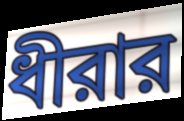
ধীরার